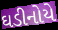
ઘડીનોયે